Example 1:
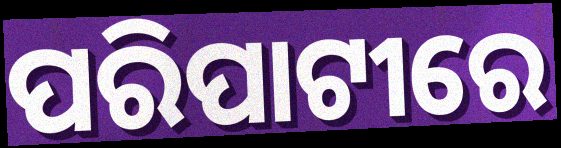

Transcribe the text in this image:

ପରିପାଟୀରେ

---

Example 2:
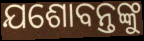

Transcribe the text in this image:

ଯଶୋବନ୍ତଙ୍କୁ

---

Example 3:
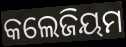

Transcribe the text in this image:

କଲେଜିୟମ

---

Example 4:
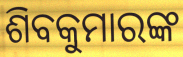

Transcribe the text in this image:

ଶିବକୁମାରଙ୍କ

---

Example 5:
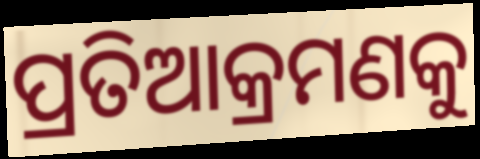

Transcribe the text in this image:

ପ୍ରତିଆକ୍ରମଣକୁ